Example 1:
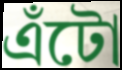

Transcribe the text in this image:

এঁটো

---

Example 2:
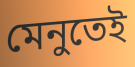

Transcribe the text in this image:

মেনুতেই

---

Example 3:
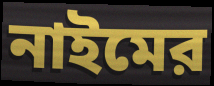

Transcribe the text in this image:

নাইমের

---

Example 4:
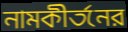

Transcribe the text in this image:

নামকীর্তনের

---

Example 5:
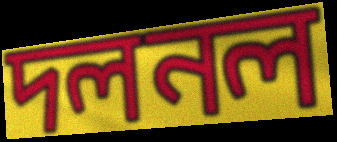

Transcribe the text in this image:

দলনল